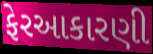
ફેરઆકારણી